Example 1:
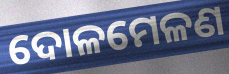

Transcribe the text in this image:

ଦୋଳମେଳଣ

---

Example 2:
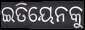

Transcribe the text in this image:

ଇତିୟେନକୁ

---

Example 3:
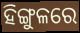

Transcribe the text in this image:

ହିଙ୍ଗୁଳରେ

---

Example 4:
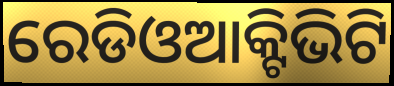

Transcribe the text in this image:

ରେଡିଓଆକ୍ଟିଭିଟି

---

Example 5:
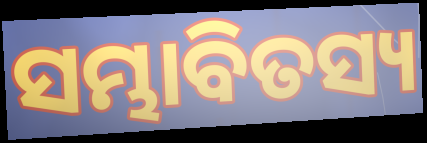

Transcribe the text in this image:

ସମ୍ଭାବିତସ୍ୟ